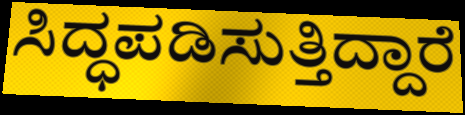
ಸಿದ್ಧಪಡಿಸುತ್ತಿದ್ದಾರೆ